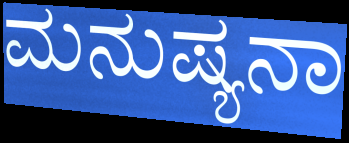
ಮನುಷ್ಯನಾ